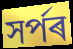
সৰ্পৰ